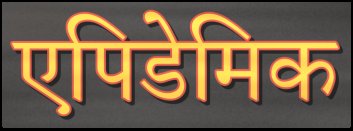
एपिडेमिक